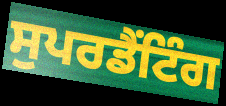
ਸੁਪਰਡੈਂਟਿੰਗ